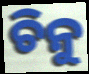
ଚିନୁ